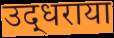
उद्धराया